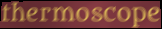
thermoscope